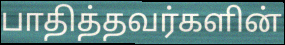
பாதித்தவர்களின்